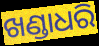
ଖଣ୍ଡାଧରି